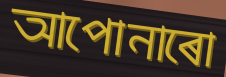
আপোনাৰো